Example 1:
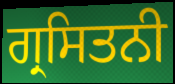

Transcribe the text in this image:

ਗ੍ਰਸਿਤਨੀ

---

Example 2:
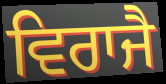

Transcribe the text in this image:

ਵਿਰਾਜੈ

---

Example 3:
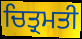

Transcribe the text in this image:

ਚਿਤ੍ਰਮਤੀ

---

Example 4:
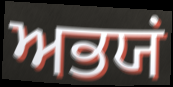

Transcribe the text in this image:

ਅਭਯਂ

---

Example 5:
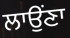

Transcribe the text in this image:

ਲਾਉਂਣਾ